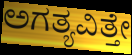
ಅಗತ್ಯವಿತ್ತೇ